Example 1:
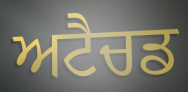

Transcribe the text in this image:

ਅਟੈਚਡ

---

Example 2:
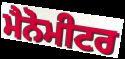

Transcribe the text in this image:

ਮੈਨੋਮੀਟਰ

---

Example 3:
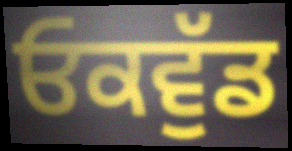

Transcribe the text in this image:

ਓਕਵੁੱਡ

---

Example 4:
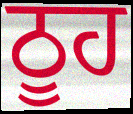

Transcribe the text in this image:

ਠੂਹ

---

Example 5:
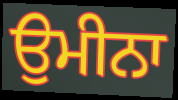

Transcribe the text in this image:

ਉਮੀਨਾ